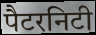
पैटरनिटी